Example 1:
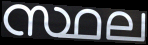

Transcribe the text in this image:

സ്ഥല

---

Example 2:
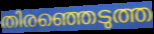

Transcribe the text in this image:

തിരഞ്ഞെടുത്ത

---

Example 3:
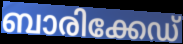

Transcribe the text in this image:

ബാരിക്കേഡ്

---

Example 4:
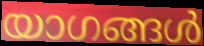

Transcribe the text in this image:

യാഗങ്ങൾ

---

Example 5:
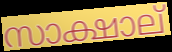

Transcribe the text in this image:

സാക്ഷാല്